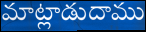
మాట్లాడుదాము